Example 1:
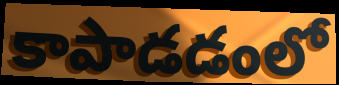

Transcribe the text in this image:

కాపాడడంలో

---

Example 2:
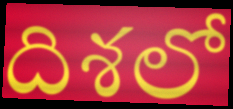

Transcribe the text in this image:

దిశలో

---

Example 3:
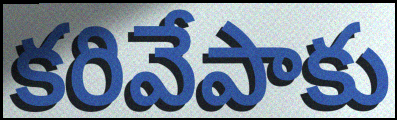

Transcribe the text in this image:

కరివేపాకు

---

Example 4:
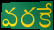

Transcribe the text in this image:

వరకే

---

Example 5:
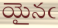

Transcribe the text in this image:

యైనఁ